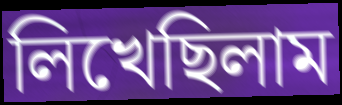
লিখেছিলাম